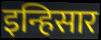
इन्हिसार